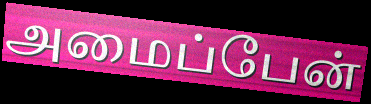
அமைப்பேன்